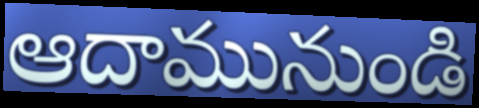
ఆదామునుండి